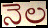
నెల